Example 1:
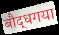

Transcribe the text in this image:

बौद्धगया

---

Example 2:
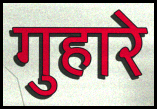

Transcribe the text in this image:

गुहारे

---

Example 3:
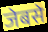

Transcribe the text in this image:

जेबसे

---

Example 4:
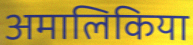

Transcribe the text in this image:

अमालिकिया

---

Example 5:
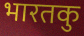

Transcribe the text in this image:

भारतकु